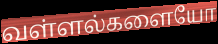
வள்ளல்களையோ